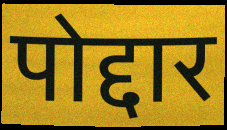
पोद्दार